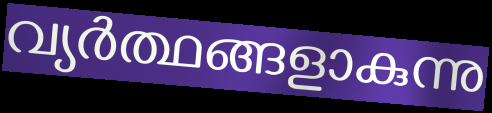
വ്യർത്ഥങ്ങളാകുന്നു